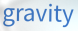
gravity